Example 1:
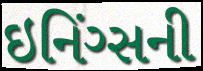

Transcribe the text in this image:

ઇનિંગ્સની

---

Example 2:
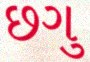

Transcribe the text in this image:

છગુ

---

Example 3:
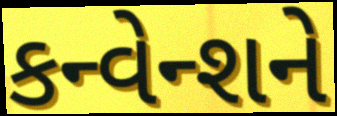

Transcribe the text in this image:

કન્વેન્શને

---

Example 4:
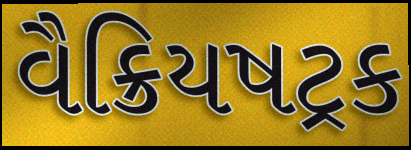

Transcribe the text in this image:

વૈક્રિયષટ્રક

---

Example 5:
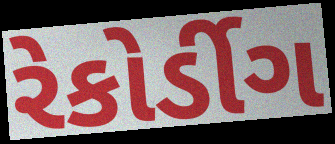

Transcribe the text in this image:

રેકોર્ડીગ